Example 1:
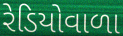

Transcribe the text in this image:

રેડિયોવાળા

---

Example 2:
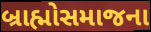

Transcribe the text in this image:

બ્રાહ્મોસમાજના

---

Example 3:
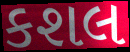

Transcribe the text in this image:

કશલ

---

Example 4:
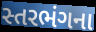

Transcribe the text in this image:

સ્તરભંગના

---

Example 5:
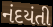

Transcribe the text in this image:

નંદયંતી